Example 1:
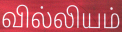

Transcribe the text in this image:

வில்லியம்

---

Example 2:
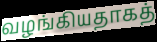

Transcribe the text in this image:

வழங்கியதாகத்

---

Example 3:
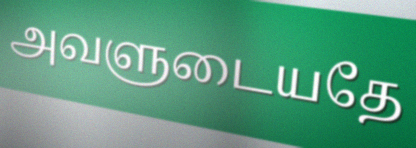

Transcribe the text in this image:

அவளுடையதே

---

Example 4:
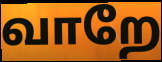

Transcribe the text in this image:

வாறே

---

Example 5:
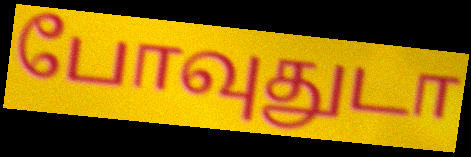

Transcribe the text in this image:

போவுதுடா